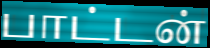
பாட்டன்